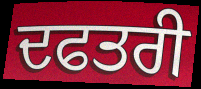
ਦਫਤਰੀ